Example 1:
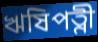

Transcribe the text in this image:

ঋষিপত্নী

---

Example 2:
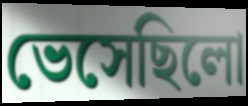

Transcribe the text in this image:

ভেসেছিলো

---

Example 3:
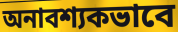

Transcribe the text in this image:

অনাবশ্যকভাবে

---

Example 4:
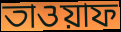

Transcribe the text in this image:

তাওয়াফ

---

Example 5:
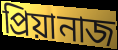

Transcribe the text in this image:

প্রিয়ানাজ